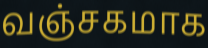
வஞ்சகமாக